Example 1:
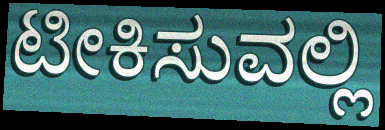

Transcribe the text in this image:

ಟೀಕಿಸುವಲ್ಲಿ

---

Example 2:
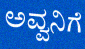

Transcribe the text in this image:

ಅವ್ವನಿಗೆ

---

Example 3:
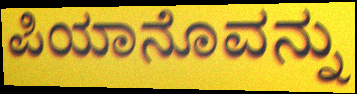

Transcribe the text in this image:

ಪಿಯಾನೊವನ್ನು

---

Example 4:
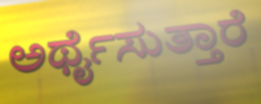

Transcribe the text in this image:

ಅರ್ಥೈಸುತ್ತಾರೆ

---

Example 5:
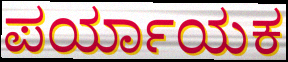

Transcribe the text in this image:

ಪರ್ಯಾಯಕ